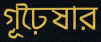
গূঢ়ৈষার